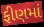
ફીણમાં